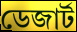
ডেজার্ট